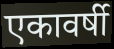
एकावर्षी